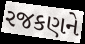
રજકણને